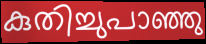
കുതിച്ചുപാഞ്ഞു